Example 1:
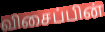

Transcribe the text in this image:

விசைப்பின்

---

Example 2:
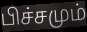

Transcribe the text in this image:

பிச்சமும்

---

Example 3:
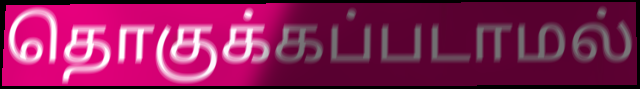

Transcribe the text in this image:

தொகுக்கப்படாமல்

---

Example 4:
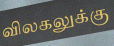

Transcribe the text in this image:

விலகலுக்கு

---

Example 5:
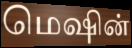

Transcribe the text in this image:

மெஷின்